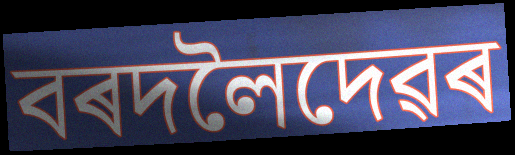
বৰদলৈদেৱৰ